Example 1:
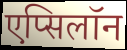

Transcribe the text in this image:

एप्सिलॉन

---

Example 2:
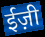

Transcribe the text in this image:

ईज़ी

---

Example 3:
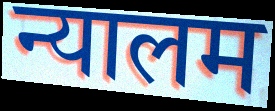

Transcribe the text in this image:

न्यालम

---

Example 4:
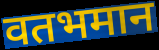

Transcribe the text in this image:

वतभमान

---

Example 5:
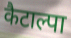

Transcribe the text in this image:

कैटाल्पा